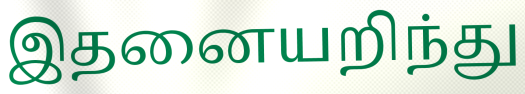
இதனையறிந்து